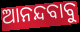
ଆନନ୍ଦବାବୁ